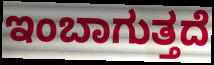
ಇಂಬಾಗುತ್ತದೆ